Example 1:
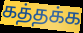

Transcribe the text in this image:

கத்தக்க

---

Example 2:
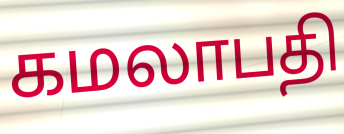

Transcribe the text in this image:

கமலாபதி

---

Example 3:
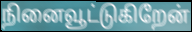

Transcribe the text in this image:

நினைவூட்டுகிறேன்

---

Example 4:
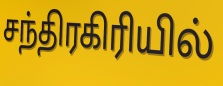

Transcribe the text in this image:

சந்திரகிரியில்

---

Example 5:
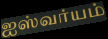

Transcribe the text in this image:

ஐஸ்வர்யம்